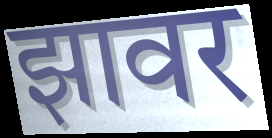
झावर